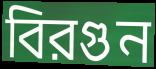
বিরগুন